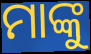
ମାଙ୍କୁ